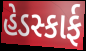
હેડસ્કાર્ફ